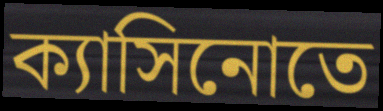
ক্যাসিনোতে